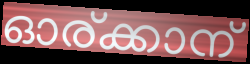
ഓര്ക്കാന്